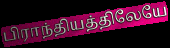
பிராந்தியத்திலேயே